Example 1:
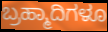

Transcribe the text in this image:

ಬ್ರಹ್ಮಾದಿಗಳೂ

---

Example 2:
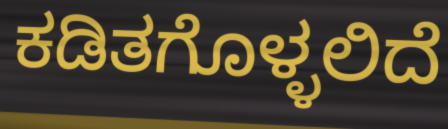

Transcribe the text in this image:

ಕಡಿತಗೊಳ್ಳಲಿದೆ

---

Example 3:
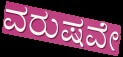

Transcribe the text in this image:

ವರುಷವೇ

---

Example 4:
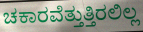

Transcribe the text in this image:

ಚಕಾರವೆತ್ತುತ್ತಿರಲಿಲ್ಲ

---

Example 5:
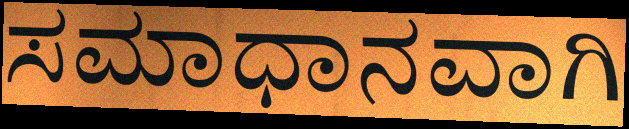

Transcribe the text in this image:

ಸಮಾಧಾನವಾಗಿ